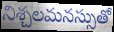
నిశ్చలమనస్సుతో